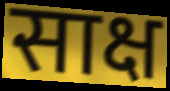
साक्ष